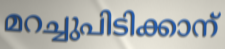
മറച്ചുപിടിക്കാന്